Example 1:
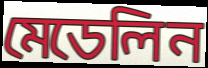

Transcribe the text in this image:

মেডেলিন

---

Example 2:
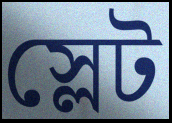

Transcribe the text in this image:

স্লেট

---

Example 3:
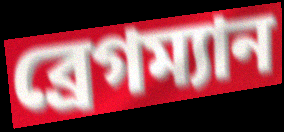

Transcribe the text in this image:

ব্রেগম্যান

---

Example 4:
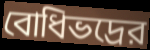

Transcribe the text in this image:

বোধিভদ্রের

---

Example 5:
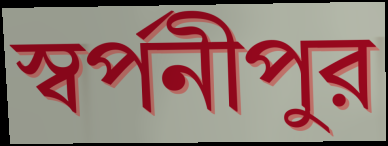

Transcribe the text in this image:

স্বর্পনীপুর